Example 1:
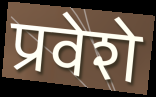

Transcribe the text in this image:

प्रवेशे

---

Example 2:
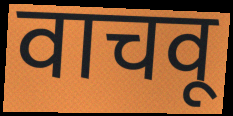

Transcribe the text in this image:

वाचवू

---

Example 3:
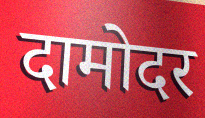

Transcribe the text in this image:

दामोदर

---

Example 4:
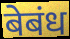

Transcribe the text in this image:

बेबंध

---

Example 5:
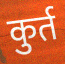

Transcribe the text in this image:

कुर्त